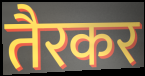
तैरकर